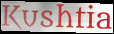
Kushtia